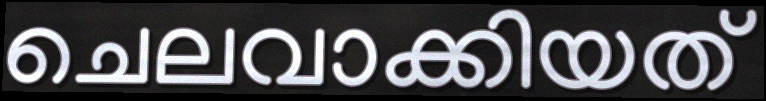
ചെലവാക്കിയത്